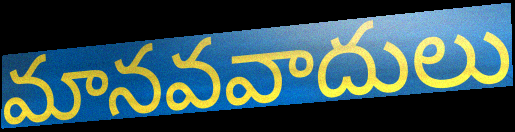
మానవవాదులు